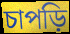
চাপড়ি